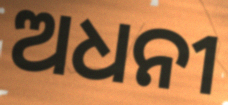
ଅଧନୀ